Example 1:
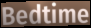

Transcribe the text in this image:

Bedtime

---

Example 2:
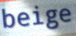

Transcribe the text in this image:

beige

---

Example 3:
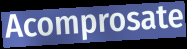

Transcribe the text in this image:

Acomprosate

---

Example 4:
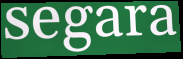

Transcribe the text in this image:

segara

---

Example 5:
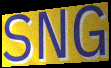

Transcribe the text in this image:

SNG